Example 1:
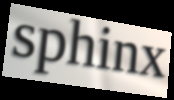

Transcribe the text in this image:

sphinx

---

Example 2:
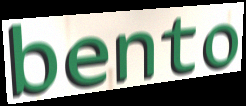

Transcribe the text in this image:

bento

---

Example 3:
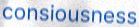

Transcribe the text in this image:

consiousness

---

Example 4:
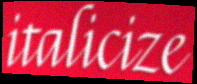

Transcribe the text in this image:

italicize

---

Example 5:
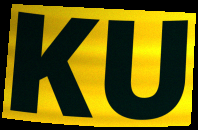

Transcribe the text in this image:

KU